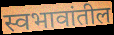
स्वभावांतील